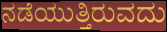
ನಡೆಯುತ್ತಿರುವದು